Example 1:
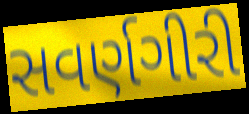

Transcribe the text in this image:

સવર્ણગીરી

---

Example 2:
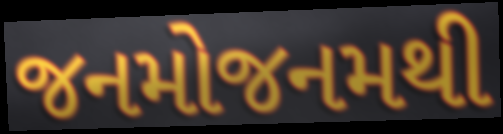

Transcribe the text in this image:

જનમોજનમથી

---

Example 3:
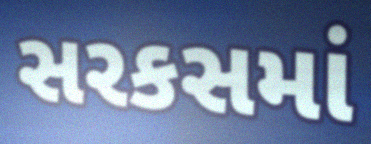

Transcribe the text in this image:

સરકસમાં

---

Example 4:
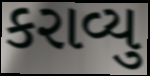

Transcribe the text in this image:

કરાવ્યુ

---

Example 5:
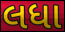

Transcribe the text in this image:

લધા